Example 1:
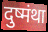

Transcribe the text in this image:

दुष्मंथा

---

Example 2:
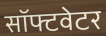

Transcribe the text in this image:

सॉफ्टवेटर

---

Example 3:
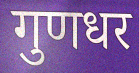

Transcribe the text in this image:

गुणधर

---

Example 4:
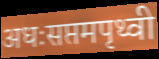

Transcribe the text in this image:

अधःसप्तमपृथ्वी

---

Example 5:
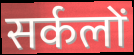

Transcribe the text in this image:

सर्कलों